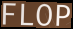
FLOP